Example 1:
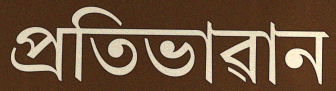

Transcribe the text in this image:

প্ৰতিভাৱান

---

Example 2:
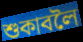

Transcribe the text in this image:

শুকাবলৈ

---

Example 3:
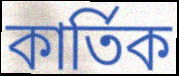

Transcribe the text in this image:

কাৰ্তিক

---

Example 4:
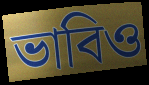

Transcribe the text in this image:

ভাবিও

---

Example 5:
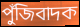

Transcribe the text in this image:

পুঁজিবাদক